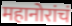
महानोरांचं